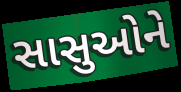
સાસુઓને